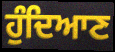
ਹੁੰਦਿਆਣ